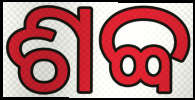
ଶବ୍ବ